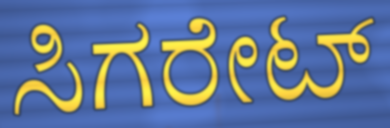
ಸಿಗರೇಟ್